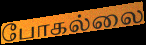
போகல்லை